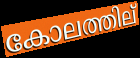
കോലത്തില്